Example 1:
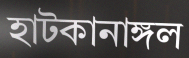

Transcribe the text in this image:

হাটকানাঙ্গল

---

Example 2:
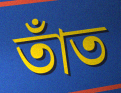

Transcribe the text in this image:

তাঁত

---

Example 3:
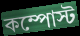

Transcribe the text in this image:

কম্পোস্ট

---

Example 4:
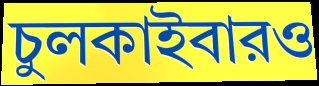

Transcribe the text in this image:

চুলকাইবারও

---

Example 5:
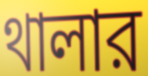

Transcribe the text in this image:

থালার